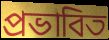
প্ৰভাবিত